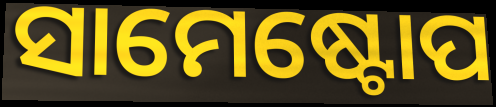
ସାମେଷ୍ଟୋପ